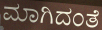
ಮಾಗಿದಂತೆ